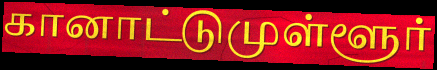
கானாட்டுமுள்ளூர்